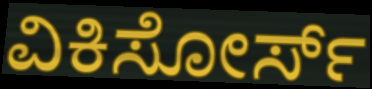
ವಿಕಿಸೋರ್ಸ್